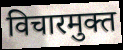
विचारमुक्त